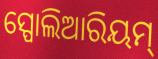
ସ୍ପୋଲିଆରିୟମ୍